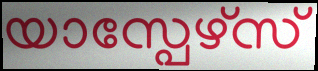
യാസ്പേഴ്സ്